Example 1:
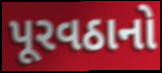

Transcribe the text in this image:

પૂરવઠાનો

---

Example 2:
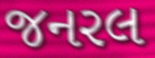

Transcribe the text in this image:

જનરલ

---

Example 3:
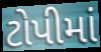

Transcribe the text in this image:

ટોપીમાં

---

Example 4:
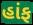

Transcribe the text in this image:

હાંફ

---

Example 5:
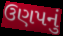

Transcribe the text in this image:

ઉણપનું